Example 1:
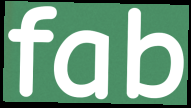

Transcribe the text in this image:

fab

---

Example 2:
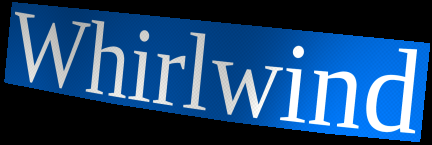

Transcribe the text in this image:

Whirlwind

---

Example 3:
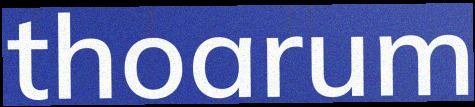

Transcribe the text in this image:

thoarum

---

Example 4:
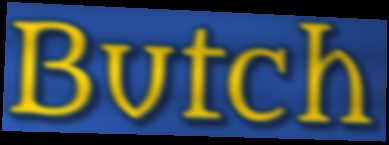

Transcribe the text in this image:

Butch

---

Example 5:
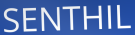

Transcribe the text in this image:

SENTHIL